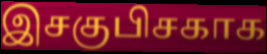
இசகுபிசகாக